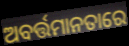
ଅବର୍ତ୍ତମାନତାରେ